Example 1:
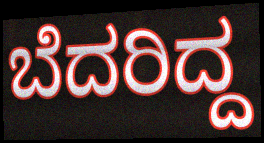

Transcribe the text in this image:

ಬೆದರಿದ್ದ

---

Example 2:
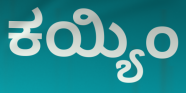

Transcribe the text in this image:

ಕಯ್ಯಿಂ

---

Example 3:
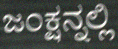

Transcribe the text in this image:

ಜಂಕ್ಷನ್ನಲ್ಲಿ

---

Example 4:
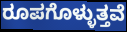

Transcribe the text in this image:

ರೂಪಗೊಳ್ಳುತ್ತವೆ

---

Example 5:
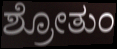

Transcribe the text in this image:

ಶ್ರೋತುಂ